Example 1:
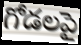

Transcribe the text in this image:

గోడలపై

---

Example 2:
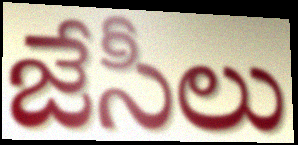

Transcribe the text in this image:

జేసీలు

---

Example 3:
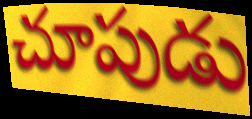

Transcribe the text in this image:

చూపుడు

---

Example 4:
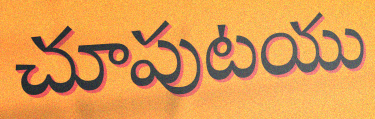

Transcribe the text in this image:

చూపుటయు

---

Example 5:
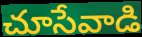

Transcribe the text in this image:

చూసేవాడి